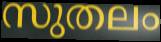
സുതലം